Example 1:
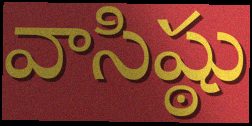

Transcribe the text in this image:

వాసిష్ఠు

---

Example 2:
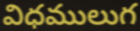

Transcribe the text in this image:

విధములుగ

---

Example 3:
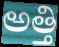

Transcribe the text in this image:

అత్తి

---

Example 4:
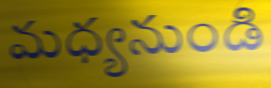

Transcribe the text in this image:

మధ్యనుండి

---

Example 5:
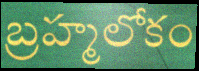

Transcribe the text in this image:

బ్రహ్మలోకం